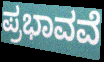
ಪ್ರಭಾವವೆ